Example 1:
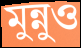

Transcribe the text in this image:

মুন্নুও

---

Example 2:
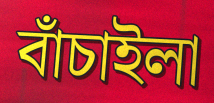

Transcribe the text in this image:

বাঁচাইলা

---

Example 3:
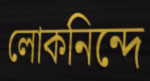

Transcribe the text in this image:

লোকনিন্দে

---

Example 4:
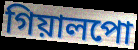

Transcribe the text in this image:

গিয়ালপো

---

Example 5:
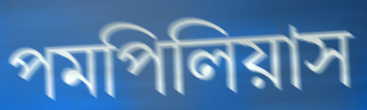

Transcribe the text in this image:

পমপিলিয়াস